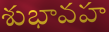
శుభావహ